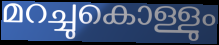
മറച്ചുകൊള്ളും